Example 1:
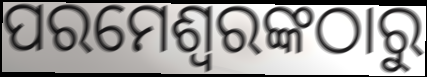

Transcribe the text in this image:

ପରମେଶ୍ଵରଙ୍କଠାରୁ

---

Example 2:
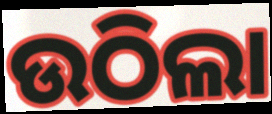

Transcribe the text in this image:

ଉଠିଲା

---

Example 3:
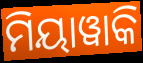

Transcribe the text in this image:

ମିୟାୱାକି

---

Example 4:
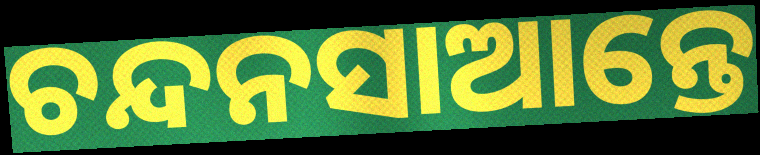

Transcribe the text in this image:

ଚନ୍ଦନସାଆନ୍ତେ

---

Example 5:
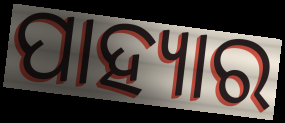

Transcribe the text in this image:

ପାହ୍ୟାର